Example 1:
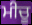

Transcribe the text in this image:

ਮੀਚੂ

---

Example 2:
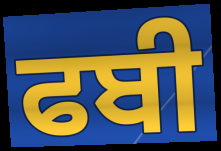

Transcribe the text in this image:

ਫਬੀ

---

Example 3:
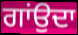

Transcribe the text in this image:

ਗਾਂਉਦਾ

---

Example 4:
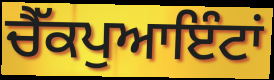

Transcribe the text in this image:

ਚੈੱਕਪੁਆਇੰਟਾਂ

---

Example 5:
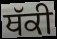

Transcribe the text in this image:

ਥੱਕੀ